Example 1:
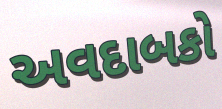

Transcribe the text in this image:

અવદાબકો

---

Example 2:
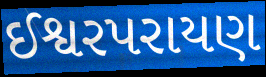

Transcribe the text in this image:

ઈશ્વરપરાયણ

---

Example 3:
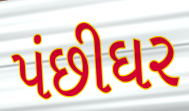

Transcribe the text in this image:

પંછીઘર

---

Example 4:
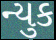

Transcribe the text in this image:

ન્યુક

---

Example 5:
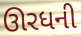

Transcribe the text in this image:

ઊરધની